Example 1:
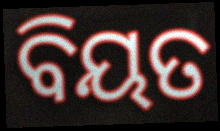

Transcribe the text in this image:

ବିୟତ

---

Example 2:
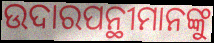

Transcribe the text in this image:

ଉଦାରପନ୍ଥୀମାନଙ୍କୁ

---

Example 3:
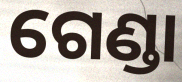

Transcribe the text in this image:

ଗେଣ୍ଡା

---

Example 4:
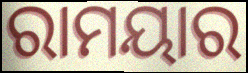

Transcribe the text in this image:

ରାମୟାର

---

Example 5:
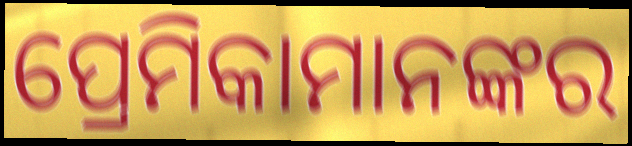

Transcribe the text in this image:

ପ୍ରେମିକାମାନଙ୍କର